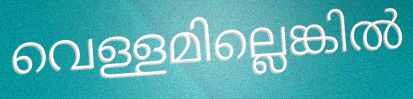
വെള്ളമില്ലെങ്കിൽ